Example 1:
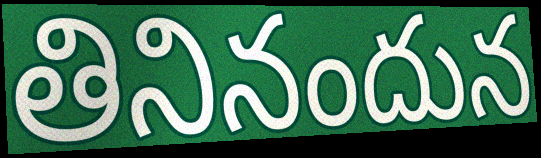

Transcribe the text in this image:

తినినందున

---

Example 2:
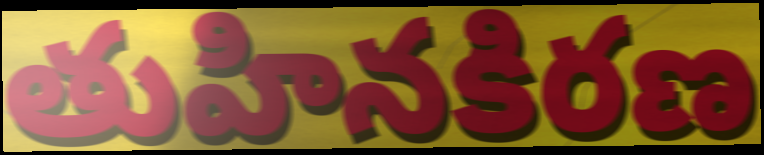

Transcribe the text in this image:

తుహినకిరణ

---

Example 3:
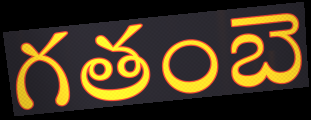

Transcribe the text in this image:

గతంబె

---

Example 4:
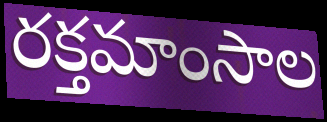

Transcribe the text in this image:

రక్తమాంసాల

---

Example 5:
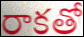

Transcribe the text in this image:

రాకతో